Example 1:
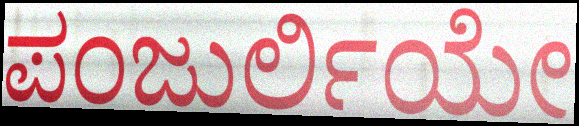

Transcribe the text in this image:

ಪಂಜುರ್ಲಿಯೇ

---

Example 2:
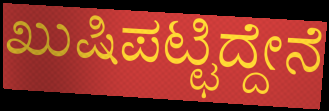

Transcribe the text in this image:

ಖುಷಿಪಟ್ಟಿದ್ದೇನೆ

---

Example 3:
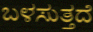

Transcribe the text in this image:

ಬಳಸುತ್ತದೆ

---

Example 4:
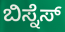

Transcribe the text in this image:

ಬಿಸ್ನೆಸ್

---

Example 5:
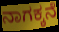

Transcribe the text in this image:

ನಾಗಕ್ಕನೆ